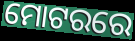
ମୋଟରରେ